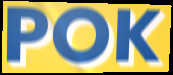
POK